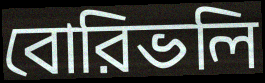
বোরিভলি